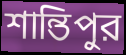
শান্তিপুর